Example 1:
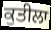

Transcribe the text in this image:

ਕੁਤੀਲਾ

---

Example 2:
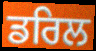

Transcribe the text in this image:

ਡਰਿਲ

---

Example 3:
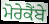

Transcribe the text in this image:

ਮੋਰੇਕੈਂਬੇ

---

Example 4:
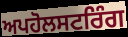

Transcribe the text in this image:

ਅਪਹੋਲਸਟਰਿੰਗ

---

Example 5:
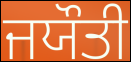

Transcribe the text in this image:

ਜਯੌਤੀ